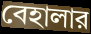
বেহালার